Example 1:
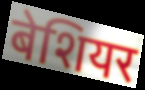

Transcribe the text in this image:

बेशियर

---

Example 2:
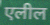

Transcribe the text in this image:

एलील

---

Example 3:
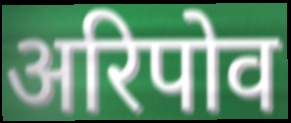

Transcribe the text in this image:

अरिपोव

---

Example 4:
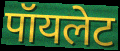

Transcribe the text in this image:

पॉयलेट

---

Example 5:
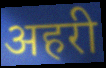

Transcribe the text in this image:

अहरी